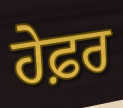
ਹੇਫ਼ਰ